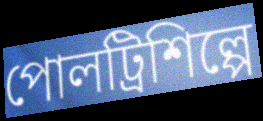
পোলট্রিশিল্পে